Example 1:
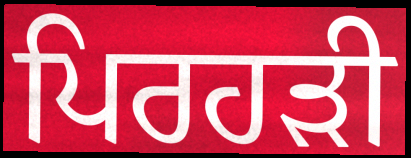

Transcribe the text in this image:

ਪਿਰਹੜੀ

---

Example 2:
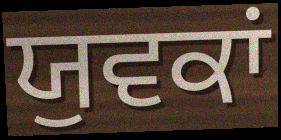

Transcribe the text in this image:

ਯੁਵਕਾਂ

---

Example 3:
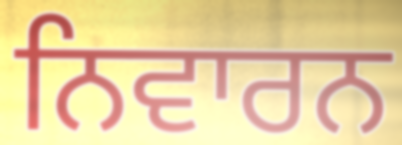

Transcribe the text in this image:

ਨਿਵਾਰਨ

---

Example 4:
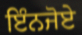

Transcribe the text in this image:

ਇੰਨਜੋਏ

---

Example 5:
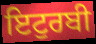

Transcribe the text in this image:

ਇਟੁਰਬੀ